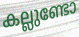
കല്ലുണ്ടോ